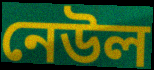
নেউল